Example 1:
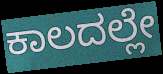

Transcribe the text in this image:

ಕಾಲದಲ್ಲೇ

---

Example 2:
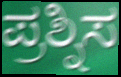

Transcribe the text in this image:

ಪ್ರಶ್ನಿಸ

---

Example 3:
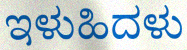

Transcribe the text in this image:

ಇಳುಹಿದಳು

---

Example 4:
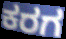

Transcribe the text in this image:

ಕರಗ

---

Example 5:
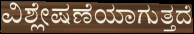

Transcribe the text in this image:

ವಿಶ್ಲೇಷಣೆಯಾಗುತ್ತದೆ